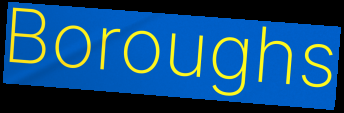
Boroughs